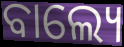
ବାଲ୍ୟେ